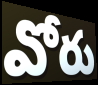
వోరు